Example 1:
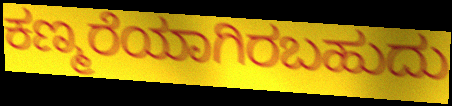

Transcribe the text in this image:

ಕಣ್ಮರೆಯಾಗಿರಬಹುದು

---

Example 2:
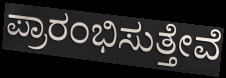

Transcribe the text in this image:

ಪ್ರಾರಂಭಿಸುತ್ತೇವೆ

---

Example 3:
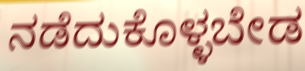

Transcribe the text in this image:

ನಡೆದುಕೊಳ್ಳಬೇಡ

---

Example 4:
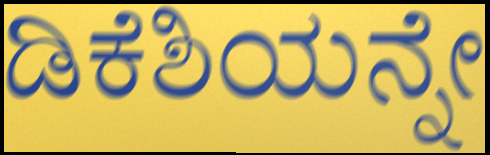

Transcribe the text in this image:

ಡಿಕೆಶಿಯನ್ನೇ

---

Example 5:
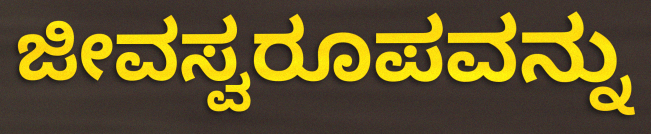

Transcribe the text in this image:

ಜೀವಸ್ವರೂಪವನ್ನು